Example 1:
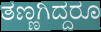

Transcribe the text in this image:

ತಣ್ಣಗಿದ್ದರೂ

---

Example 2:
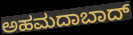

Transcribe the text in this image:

ಅಹಮದಾಬಾದ್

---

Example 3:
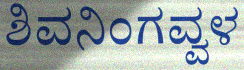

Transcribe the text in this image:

ಶಿವನಿಂಗವ್ವಳ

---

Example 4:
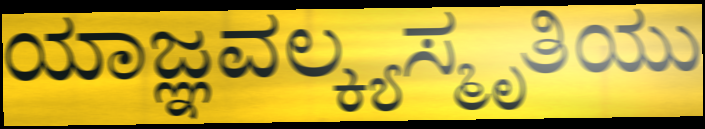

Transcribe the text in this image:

ಯಾಜ್ಞವಲ್ಕ್ಯಸ್ಮೃತಿಯು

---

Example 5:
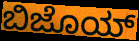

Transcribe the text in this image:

ಬಿಜೊಯ್